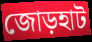
জোড়হাট